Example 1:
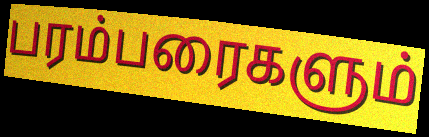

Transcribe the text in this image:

பரம்பரைகளும்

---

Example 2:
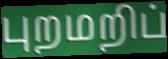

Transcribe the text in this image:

புறமறிப்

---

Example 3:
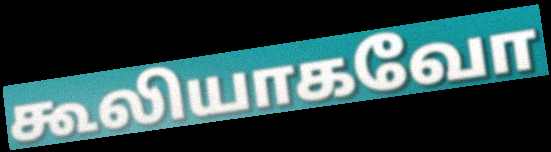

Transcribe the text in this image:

கூலியாகவோ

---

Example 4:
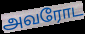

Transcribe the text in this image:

அவரோட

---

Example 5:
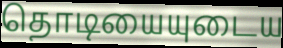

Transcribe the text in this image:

தொடியையுடைய